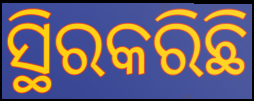
ସ୍ଥିରକରିଛି